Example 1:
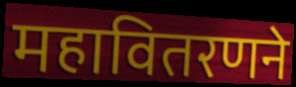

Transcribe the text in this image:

महावितरणने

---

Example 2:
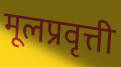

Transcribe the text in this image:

मूलप्रवृत्ती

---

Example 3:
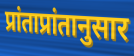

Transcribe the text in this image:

प्रांताप्रांतानुसार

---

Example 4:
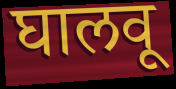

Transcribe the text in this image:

घालवू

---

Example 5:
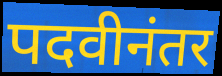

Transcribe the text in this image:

पदवीनंतर